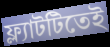
ফ্ল্যাটটিতেই